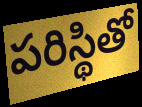
పరిస్థితో